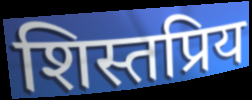
शिस्तप्रिय